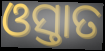
ଓସ୍ତାତ